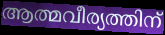
ആത്മവീര്യത്തിന്